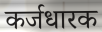
कर्जधारक